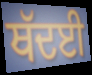
ਥੱਦਈ